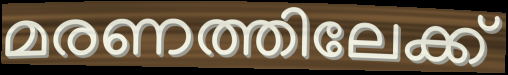
മരണത്തിലേക്ക്